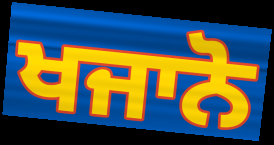
ਖਜਾਨੋ